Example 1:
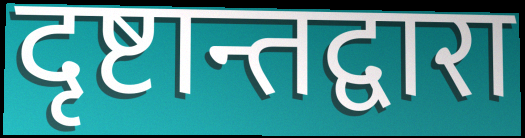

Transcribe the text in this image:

दृष्टान्तद्वारा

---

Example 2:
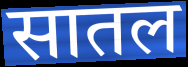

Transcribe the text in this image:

सातल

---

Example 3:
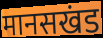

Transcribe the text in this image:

मानसखंड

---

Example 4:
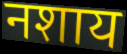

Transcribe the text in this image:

नशाय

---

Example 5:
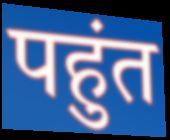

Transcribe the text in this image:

पहुंत